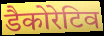
डैकोरेटिव